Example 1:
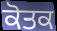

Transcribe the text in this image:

ਕੋਤਕ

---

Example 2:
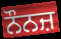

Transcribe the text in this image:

ਨੌਨਜ਼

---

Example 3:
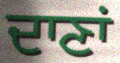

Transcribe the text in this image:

ਦਾਣਾਂ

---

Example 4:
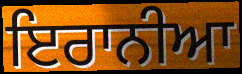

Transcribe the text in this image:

ਇਰਾਨੀਆ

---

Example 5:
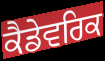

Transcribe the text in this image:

ਕੈਡੇਵਰਿਕ